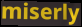
miserly